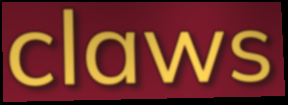
claws